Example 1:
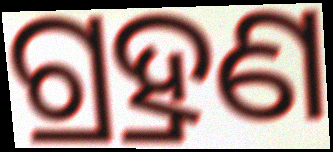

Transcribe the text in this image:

ଗ୍ର୍ରହଣ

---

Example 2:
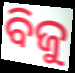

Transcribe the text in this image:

ବିଜୁ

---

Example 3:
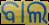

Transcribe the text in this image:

ବାଲ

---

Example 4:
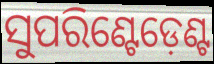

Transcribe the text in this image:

ସୁପରିଣ୍ଟେଡ଼େଣ୍ଟ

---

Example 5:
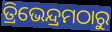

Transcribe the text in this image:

ତ୍ରିଭେନ୍ଦ୍ରମଠାରୁ